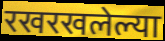
रखरखलेल्या